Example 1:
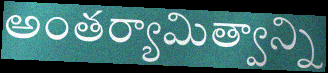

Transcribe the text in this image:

అంతర్యామిత్వాన్ని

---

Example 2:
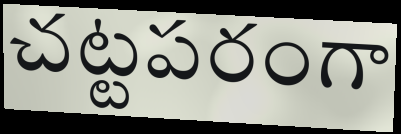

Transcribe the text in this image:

చట్టపరంగా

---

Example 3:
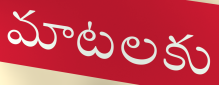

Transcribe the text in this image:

మాటలకు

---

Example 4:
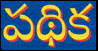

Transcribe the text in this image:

పథిక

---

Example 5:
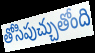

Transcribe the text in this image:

తోసిపుచ్చుతోంది